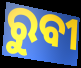
ରୁବୀ